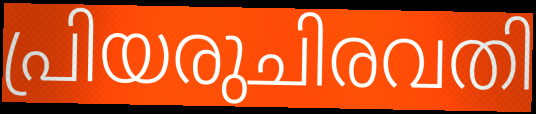
പ്രിയരുചിരവതി